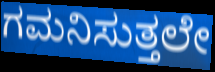
ಗಮನಿಸುತ್ತಲೇ